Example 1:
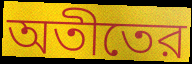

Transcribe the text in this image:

অতীতের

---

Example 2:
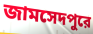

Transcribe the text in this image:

জামসেদপুরে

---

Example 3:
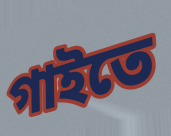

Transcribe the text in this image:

গাইতে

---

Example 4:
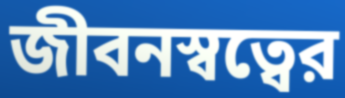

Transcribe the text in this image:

জীবনস্বত্বের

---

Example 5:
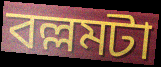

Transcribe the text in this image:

বল্লমটা